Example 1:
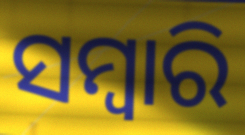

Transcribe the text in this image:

ସମ୍ବାରି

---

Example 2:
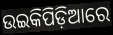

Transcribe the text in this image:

ଉଇକିପିଡ଼ିଆରେ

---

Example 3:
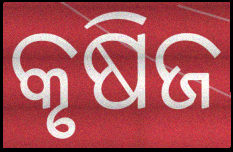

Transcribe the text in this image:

କୃଷିଜ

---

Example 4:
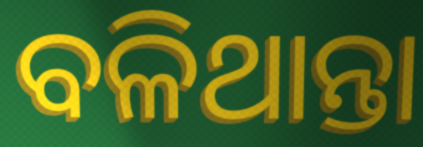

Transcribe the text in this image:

ବଳିଥାନ୍ତା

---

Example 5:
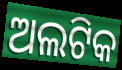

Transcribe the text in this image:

ଅଲଟିକ